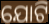
ଯୋଟି